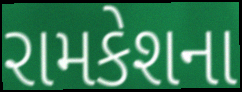
રામકેશના